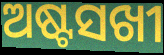
ଅଷ୍ଟସଖୀ